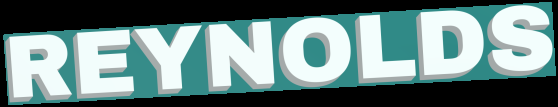
REYNOLDS